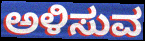
ಅಳಿಸುವ